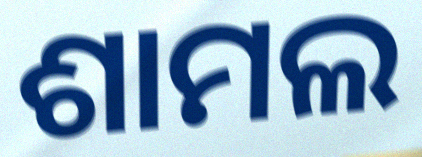
ଶାମଲ